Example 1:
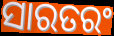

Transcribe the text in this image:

ସାରତରଂ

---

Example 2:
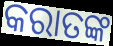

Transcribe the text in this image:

କରାତଙ୍କ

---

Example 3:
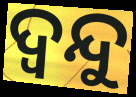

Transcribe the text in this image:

ଦ୍ଵନ୍ଦୁ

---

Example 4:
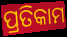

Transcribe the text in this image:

ପ୍ରତିକାମ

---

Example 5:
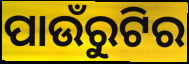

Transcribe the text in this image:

ପାଉଁରୁଟିର